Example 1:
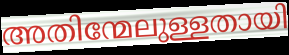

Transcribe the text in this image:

അതിന്മേലുള്ളതായി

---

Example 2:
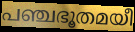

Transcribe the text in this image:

പഞ്ചഭൂതമയീ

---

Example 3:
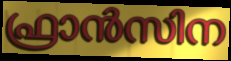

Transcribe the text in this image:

ഫ്രാൻസിന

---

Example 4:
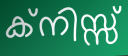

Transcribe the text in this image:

ക്നിസ്സ്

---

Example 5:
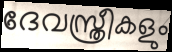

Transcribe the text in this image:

ദേവസ്ത്രീകളും